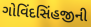
ગોવિંદસિંહજીની